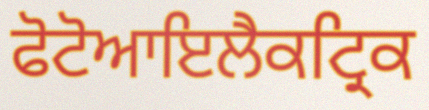
ਫੋਟੋਆਇਲੈਕਟ੍ਰਿਕ